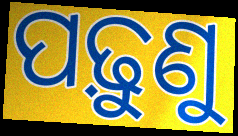
ପଢ଼ୁଣୁ